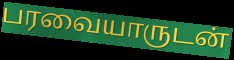
பரவையாருடன்